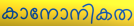
കാനോനികത